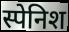
स्पेनिश